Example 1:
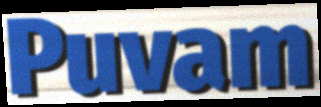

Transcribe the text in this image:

Puvam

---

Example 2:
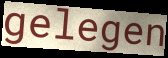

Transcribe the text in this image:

gelegen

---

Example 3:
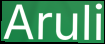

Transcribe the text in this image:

Aruli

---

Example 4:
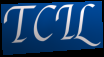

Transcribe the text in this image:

TCIL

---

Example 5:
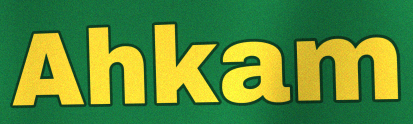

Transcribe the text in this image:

Ahkam